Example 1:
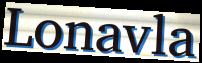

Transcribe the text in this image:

Lonavla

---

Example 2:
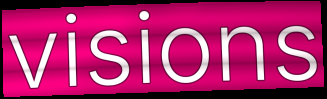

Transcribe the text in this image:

visions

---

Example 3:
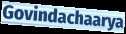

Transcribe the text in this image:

Govindachaarya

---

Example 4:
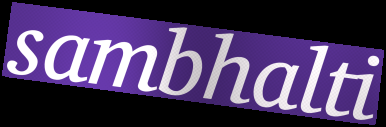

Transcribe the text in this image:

sambhalti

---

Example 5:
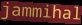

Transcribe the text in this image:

jammihal